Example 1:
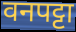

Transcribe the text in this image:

वनपट्टा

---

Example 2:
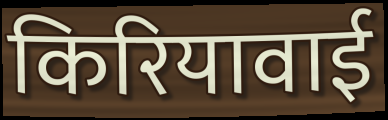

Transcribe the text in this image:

किरियावाई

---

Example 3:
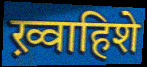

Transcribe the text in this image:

ख़्वाहिशे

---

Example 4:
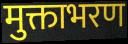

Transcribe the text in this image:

मुक्ताभरण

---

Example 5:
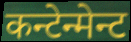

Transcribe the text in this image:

कन्टेन्मेन्ट